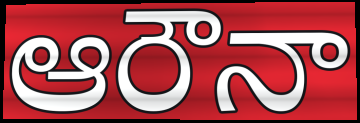
ఆరౌనా